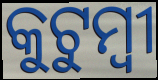
କୁଟୁମ୍ବୀ